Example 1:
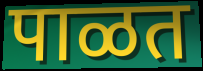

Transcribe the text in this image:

पाळत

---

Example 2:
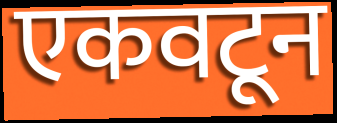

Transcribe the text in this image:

एकवटून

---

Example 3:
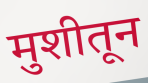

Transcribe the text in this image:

मुशीतून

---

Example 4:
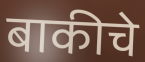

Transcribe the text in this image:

बाकीचे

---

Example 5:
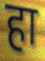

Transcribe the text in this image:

हा